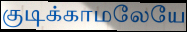
குடிக்காமலேயே